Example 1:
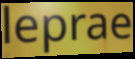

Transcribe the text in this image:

leprae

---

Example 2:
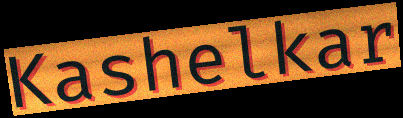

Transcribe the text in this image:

Kashelkar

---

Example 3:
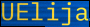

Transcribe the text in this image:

UElija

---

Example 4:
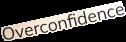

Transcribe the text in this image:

Overconfidence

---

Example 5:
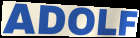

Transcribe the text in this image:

ADOLF